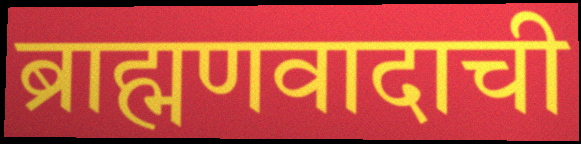
ब्राह्मणवादाची